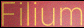
Filium